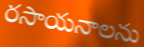
రసాయనాలను